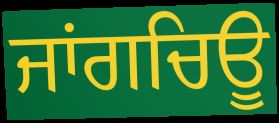
ਜਾਂਗਚਿਊ